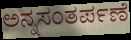
ಅನ್ನಸಂತರ್ಪಣೆ